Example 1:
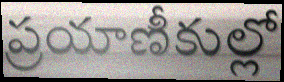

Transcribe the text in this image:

ప్రయాణీకుల్లో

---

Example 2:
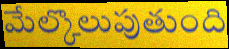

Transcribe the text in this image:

మేల్కొలుపుతుంది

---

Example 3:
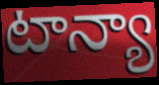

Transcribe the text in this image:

టాన్యా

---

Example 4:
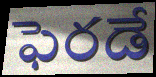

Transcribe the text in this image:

ఫెరడే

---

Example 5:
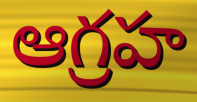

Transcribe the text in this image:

ఆగ్రహ